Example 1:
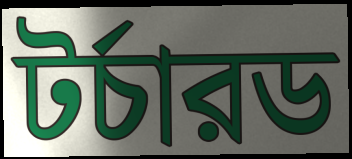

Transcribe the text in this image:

টর্চারড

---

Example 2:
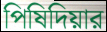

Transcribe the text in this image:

পিষিদিয়ার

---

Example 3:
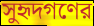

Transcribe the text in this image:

সুহৃদগণের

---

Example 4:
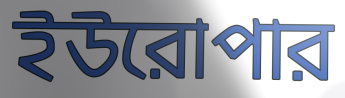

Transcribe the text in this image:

ইউরোপার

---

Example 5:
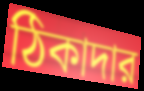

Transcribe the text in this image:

ঠিকাদার